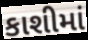
કાશીમાં